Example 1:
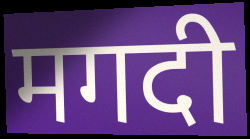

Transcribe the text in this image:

मगदी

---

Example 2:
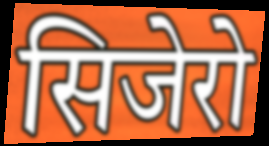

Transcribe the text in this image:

सिजेरो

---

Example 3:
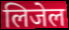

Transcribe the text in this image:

लिजेल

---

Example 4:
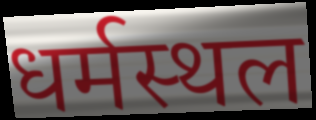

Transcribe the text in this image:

धर्मस्थल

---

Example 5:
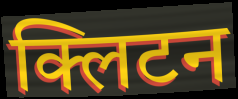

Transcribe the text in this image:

क्लिटन